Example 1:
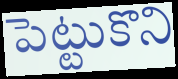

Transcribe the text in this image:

పెట్టుకొని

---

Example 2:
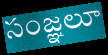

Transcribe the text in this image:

సంజ్ఞలూ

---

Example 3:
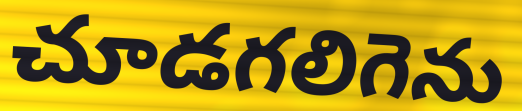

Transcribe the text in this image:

చూడగలిగెను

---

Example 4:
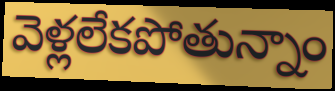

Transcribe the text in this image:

వెళ్లలేకపోతున్నాం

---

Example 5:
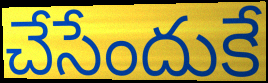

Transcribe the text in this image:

చేసేందుకే